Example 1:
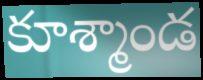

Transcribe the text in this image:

కూశ్మాండ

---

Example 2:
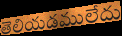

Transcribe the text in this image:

తెలియడములేదు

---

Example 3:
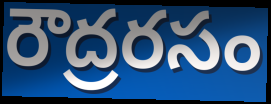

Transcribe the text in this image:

రౌద్రరసం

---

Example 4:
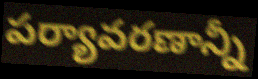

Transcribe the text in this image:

పర్యావరణాన్నీ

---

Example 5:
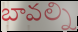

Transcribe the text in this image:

బావల్ని